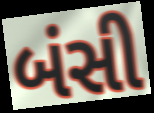
બંસી